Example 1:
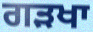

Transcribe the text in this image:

ਗੜਖਾ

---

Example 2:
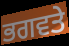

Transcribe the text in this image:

ਭਗਵਤੇ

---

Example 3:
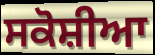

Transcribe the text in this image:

ਸਕੋਸ਼ੀਆ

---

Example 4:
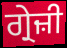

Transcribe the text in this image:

ਗ੍ਰੇਜ਼ੀ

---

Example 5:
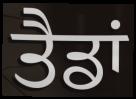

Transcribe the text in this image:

ਤੈਡਾਂ